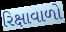
રિક્ષાવાળો